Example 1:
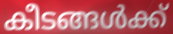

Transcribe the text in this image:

കീടങ്ങൾക്ക്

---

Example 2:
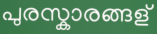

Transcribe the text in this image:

പുരസ്കാരങ്ങള്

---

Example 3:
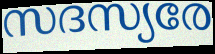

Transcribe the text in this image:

സദസ്യരേ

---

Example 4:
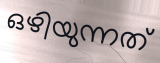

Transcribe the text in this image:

ഒഴിയുന്നത്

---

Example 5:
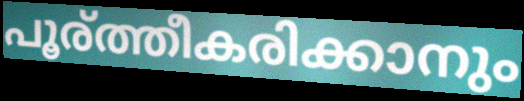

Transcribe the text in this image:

പൂര്ത്തീകരിക്കാനും